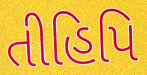
તીહિપિ